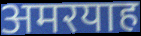
अमरयाह